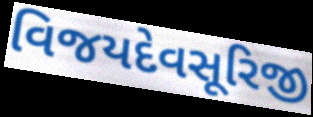
વિજયદેવસૂરિજી